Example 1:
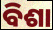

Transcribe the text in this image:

ବିଶା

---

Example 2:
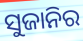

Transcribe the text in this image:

ସୁଜାନିର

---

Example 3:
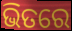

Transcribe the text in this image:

ଭିତରେ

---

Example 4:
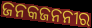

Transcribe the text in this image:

ଜନକଜନନୀର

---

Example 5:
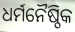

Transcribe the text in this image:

ଧର୍ମନୈଷ୍ଠିକ